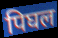
पिघल